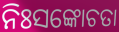
ନିଃସଙ୍କୋଚତା